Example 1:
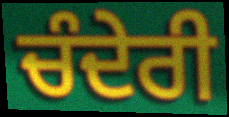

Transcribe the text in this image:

ਚੰਦੇਰੀ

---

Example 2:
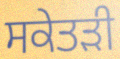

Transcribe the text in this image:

ਸਕੇਤੜੀ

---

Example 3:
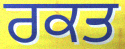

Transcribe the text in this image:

ਰਕਤ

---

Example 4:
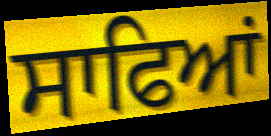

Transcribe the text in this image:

ਸਾਫਿਆਂ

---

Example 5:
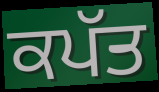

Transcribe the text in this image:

ਕਪੱਤ